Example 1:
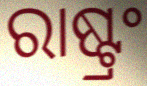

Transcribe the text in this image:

ରାଷ୍ଟ୍ରଂ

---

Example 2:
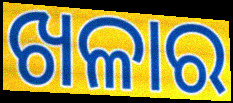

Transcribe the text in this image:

ଖଳାର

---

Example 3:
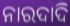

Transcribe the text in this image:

ନାରଦାଦି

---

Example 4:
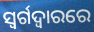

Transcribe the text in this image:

ସ୍ୱର୍ଗଦ୍ୱାରରେ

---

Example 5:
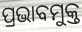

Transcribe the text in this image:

ପ୍ରଭାବମୁକ୍ତ